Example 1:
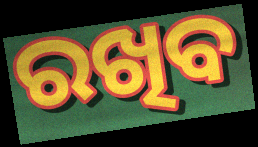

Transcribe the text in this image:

ରଖିବ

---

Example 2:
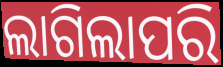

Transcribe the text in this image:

ଲାଗିଲାପରି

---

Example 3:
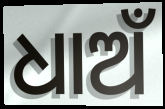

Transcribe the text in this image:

ଧାଅଁ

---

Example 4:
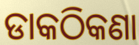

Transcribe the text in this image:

ଡାକଠିକଣା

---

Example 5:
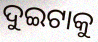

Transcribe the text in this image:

ଦୁଇଟାକୁ